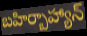
బహిర్బాహ్యాన్